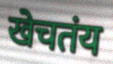
खेचतंय